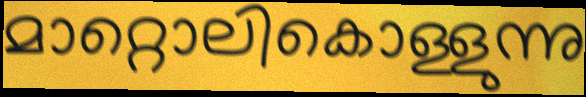
മാറ്റൊലികൊള്ളുന്നു